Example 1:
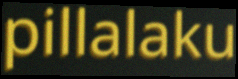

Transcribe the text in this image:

pillalaku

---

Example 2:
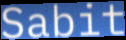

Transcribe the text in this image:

Sabit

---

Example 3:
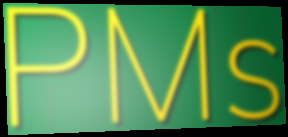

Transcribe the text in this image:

PMs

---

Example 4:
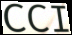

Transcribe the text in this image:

CCI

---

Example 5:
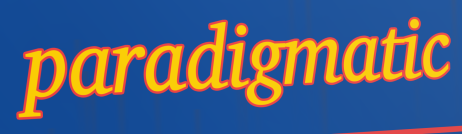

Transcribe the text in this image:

paradigmatic